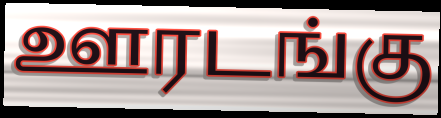
ஊரடங்கு